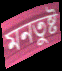
মনতুষ্ট